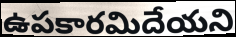
ఉపకారమిదేయని